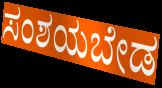
ಸಂಶಯಬೇಡ